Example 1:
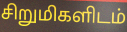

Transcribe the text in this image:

சிறுமிகளிடம்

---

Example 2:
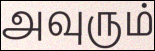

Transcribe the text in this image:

அவுரும்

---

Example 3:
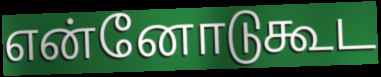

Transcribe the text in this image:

என்னோடுகூட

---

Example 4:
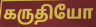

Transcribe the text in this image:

கருதியோ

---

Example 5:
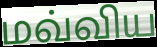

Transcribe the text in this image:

மவ்விய